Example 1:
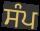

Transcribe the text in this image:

ਸੰਪ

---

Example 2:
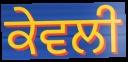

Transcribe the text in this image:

ਕੇਵਲੀ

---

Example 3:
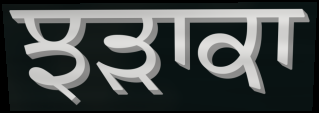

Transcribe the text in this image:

ਝੜਾਕਾ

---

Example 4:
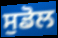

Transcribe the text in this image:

ਸੁਡੋਲ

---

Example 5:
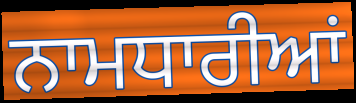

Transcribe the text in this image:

ਨਾਮਧਾਰੀਆਂ